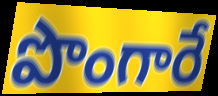
పొంగారే